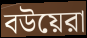
বউয়েরা